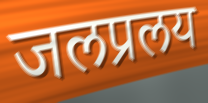
जलप्रलय